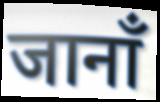
जानाँ